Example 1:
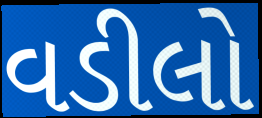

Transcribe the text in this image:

વડીલો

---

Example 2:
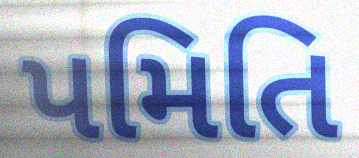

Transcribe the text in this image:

પમિતિ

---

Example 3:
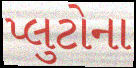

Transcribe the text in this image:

પ્લુટોના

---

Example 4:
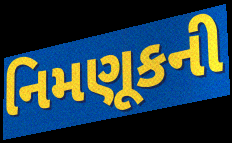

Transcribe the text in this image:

નિમણૂકની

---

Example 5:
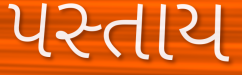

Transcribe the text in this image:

પસ્તાય